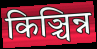
किञ्चिन्न